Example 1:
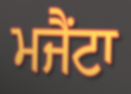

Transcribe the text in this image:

ਮਜੈਂਟਾ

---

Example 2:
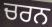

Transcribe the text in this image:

ਚਰਨ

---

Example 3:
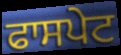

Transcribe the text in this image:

ਫਾਸਪੇਟ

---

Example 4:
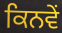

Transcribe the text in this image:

ਕਿਨਵੇਂ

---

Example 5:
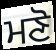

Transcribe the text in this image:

ਮਣੋ